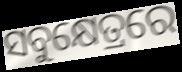
ସବୁକ୍ଷେତ୍ରରେ